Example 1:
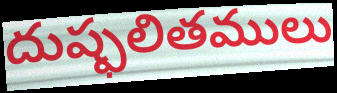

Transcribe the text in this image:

దుష్ఫలితములు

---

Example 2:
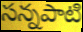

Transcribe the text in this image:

సన్నపాటి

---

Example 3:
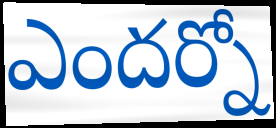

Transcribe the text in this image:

ఎందర్నో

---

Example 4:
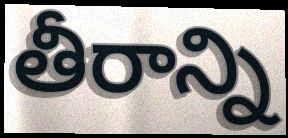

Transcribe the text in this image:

తీరాన్ని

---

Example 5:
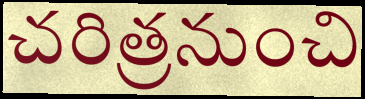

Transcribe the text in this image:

చరిత్రనుంచి